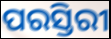
ପରସ୍ତିରୀ